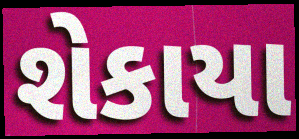
શેકાયા